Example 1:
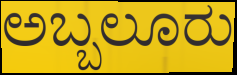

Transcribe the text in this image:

ಅಬ್ಬಲೂರು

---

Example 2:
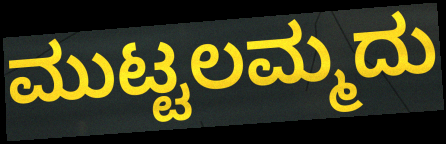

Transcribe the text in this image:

ಮುಟ್ಟಲಮ್ಮದು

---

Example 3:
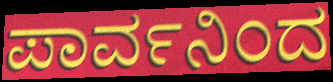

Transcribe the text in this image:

ಪಾರ್ವನಿಂದ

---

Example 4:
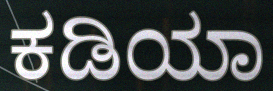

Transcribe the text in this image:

ಕಡಿಯಾ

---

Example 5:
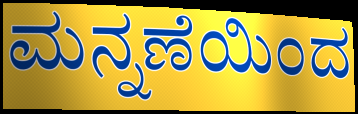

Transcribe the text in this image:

ಮನ್ನಣೆಯಿಂದ